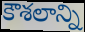
కౌశలాన్ని